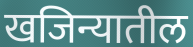
खजिन्यातील